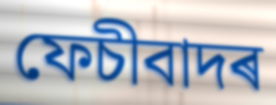
ফেচীবাদৰ